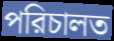
পরিচালত